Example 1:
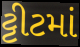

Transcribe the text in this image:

ટ્ટીટમાં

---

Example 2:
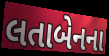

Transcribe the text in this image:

લતાબેનના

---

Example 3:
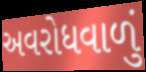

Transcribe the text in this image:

અવરોધવાળું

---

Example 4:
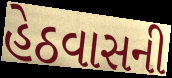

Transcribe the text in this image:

હેઠવાસની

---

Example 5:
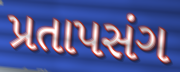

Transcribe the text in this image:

પ્રતાપસંગ